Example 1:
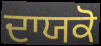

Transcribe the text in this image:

ਦਾਯਕੋ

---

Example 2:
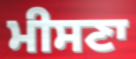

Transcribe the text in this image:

ਮੀਸਣਾ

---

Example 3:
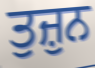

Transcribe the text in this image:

ਤੁਜ਼ੁਨ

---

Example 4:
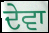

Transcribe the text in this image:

ਦੇਵਾ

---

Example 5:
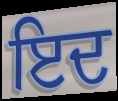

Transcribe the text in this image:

ਇਦ